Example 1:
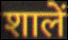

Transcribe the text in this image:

शालें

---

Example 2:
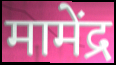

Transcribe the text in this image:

मामेंद्र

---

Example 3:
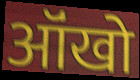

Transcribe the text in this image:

ऑंखो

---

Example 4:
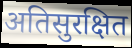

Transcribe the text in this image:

अतिसुरक्षित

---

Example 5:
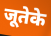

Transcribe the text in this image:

जूतेके